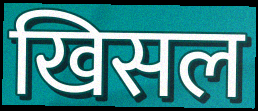
खिसल